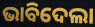
ଭାବିଦେଲା